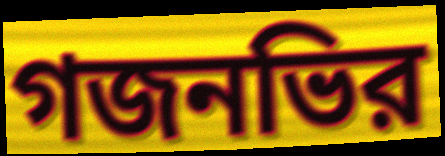
গজনভির